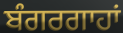
ਬੰਗਰਗਾਹਾਂ